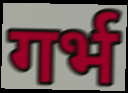
गर्भ